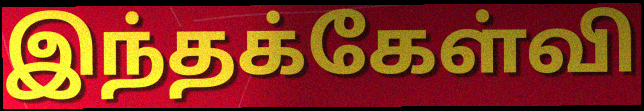
இந்தக்கேள்வி